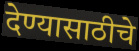
देण्यासाठीचे